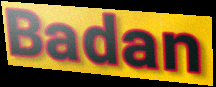
Badan